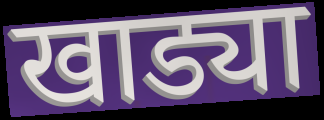
खाड्या